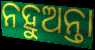
ନହୁଅନ୍ତା